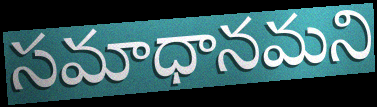
సమాధానమని